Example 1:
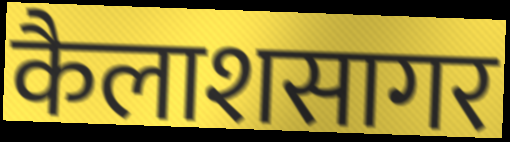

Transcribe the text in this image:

कैलाशसागर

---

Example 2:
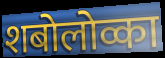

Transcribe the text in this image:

शबोलोव्का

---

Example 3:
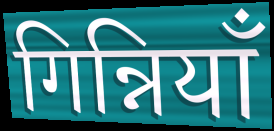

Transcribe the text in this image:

गिन्नियाँ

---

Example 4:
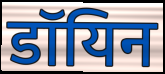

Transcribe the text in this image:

डॉयिन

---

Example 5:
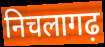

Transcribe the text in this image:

निचलागढ़